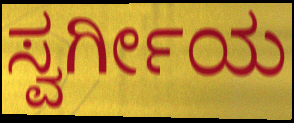
ಸ್ವರ್ಗೀಯ